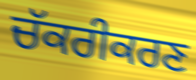
ਚੱਕਰੀਕਰਣ